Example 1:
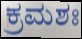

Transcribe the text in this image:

ಕ್ರಮಶಃ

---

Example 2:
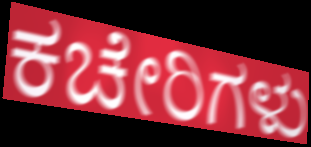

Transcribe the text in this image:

ಕಚೇರಿಗಳು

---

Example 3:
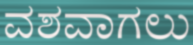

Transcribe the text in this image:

ವಶವಾಗಲು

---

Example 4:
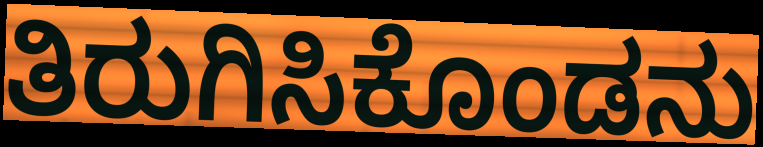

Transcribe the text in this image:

ತಿರುಗಿಸಿಕೊಂಡನು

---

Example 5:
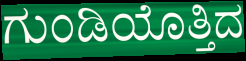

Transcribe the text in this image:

ಗುಂಡಿಯೊತ್ತಿದ